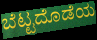
ಬೆಟ್ಟದೊಡೆಯ